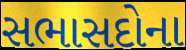
સભાસદોના